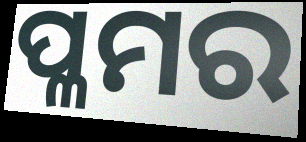
ପ୍ଳମର